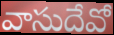
వాసుదేవో